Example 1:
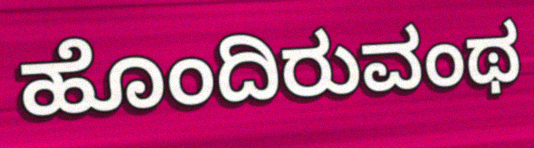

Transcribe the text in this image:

ಹೊಂದಿರುವಂಥ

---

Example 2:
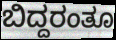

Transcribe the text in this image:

ಬಿದ್ದರಂತೂ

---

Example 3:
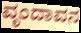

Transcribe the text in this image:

ವೃಂದಾವನ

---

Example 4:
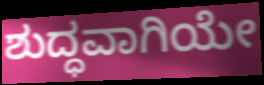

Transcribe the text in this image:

ಶುದ್ಧವಾಗಿಯೇ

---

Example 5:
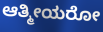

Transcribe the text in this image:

ಆತ್ಮೀಯರೋ